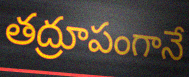
తద్రూపంగానే